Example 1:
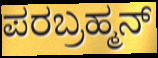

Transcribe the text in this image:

ಪರಬ್ರಹ್ಮನ್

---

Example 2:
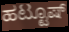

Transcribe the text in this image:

ಹಟ್ಟೂಷ್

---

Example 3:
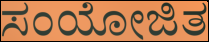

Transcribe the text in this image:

ಸಂಯೋಜಿತ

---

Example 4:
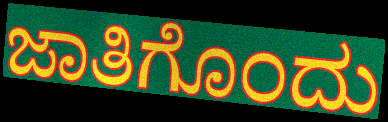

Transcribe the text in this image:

ಜಾತಿಗೊಂದು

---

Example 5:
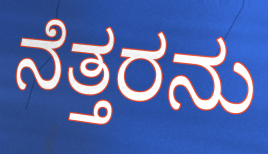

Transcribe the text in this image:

ನೆತ್ತರನು